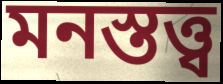
মনস্তত্ত্ব